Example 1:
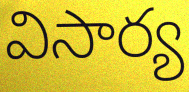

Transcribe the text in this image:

విసార్య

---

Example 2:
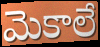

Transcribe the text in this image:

మెకాలే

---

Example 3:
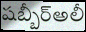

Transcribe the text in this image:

షబ్బీర్అలీ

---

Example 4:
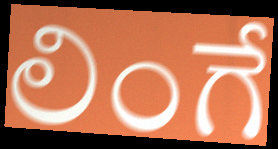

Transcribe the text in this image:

లింగే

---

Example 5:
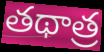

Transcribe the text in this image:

తథాత్ర